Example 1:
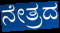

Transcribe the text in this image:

ನೇತ್ರದ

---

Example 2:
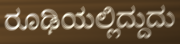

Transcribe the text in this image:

ರೂಢಿಯಲ್ಲಿದ್ದುದು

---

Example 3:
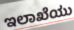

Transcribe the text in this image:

ಇಲಾಖೆಯು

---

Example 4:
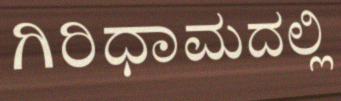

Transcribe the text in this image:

ಗಿರಿಧಾಮದಲ್ಲಿ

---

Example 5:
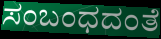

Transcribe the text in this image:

ಸಂಬಂಧದಂತೆ